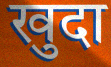
खुदा